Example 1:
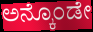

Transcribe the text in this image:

ಅನ್ಕೊಂಡೇ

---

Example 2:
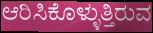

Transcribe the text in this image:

ಆರಿಸಿಕೊಳ್ಳುತ್ತಿರುವ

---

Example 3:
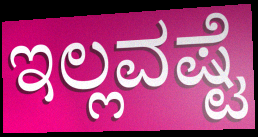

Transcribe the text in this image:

ಇಲ್ಲವಷ್ಟೆ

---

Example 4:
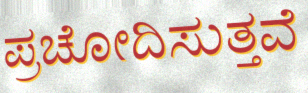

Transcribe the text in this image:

ಪ್ರಚೋದಿಸುತ್ತವೆ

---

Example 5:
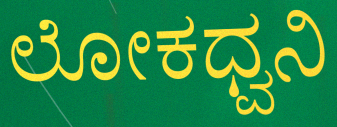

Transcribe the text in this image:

ಲೋಕಧ್ವನಿ